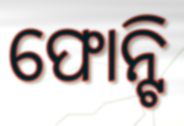
ଫୋନ୍ଟି